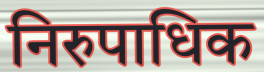
निरुपाधिक